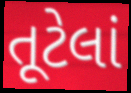
તૂટેલાં